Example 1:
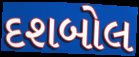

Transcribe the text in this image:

દશબોલ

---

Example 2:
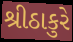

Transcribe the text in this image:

શ્રીઠાકુરે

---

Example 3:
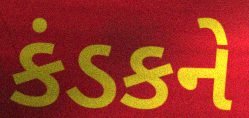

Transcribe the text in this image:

કંડકને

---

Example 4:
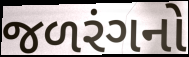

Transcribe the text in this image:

જળરંગનો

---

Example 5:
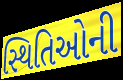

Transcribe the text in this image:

સ્થિતિઓની